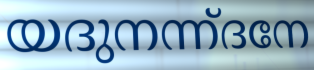
യദുനന്ന്ദനേ